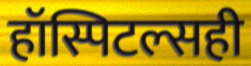
हॉस्पिटल्सही